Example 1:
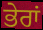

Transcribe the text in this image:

ਭੇਰਾਂ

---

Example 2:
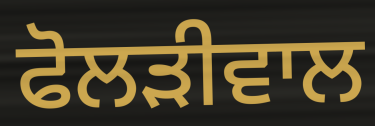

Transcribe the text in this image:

ਫੋਲੜੀਵਾਲ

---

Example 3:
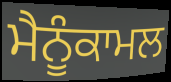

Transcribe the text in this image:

ਮੈਨੂੰਕਾਮਲ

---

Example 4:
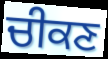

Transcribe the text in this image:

ਚੀਕਣ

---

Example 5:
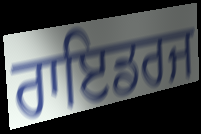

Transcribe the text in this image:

ਰਾਇਡਰਜ